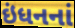
ઇંધનનાં